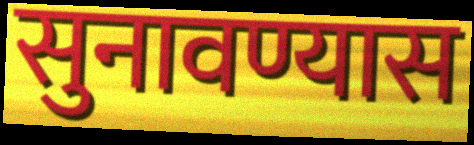
सुनावण्यास